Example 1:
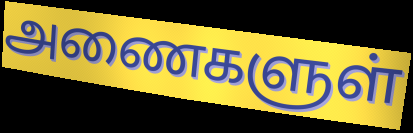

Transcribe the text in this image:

அணைகளுள்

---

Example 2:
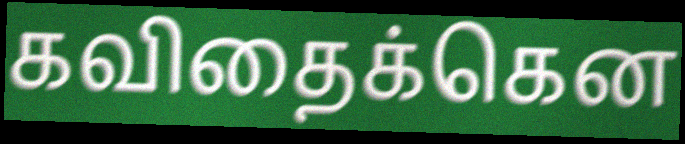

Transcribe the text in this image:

கவிதைக்கென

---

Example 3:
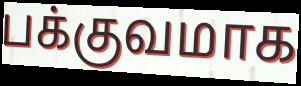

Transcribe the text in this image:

பக்குவமாக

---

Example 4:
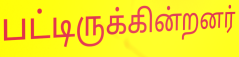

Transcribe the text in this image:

பட்டிருக்கின்றனர்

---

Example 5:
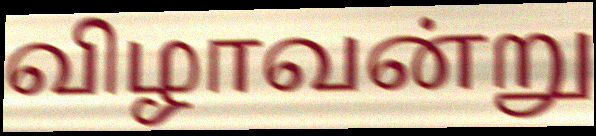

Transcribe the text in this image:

விழாவன்று